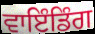
ਵਾਇੰਡਿੰਗ